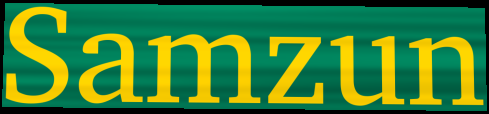
Samzun